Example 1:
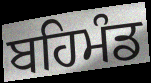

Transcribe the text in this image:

ਬਹਿਮੰਡ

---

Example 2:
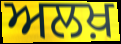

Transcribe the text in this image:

ਅਲਖ਼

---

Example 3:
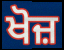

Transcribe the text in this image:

ਖੋਜ਼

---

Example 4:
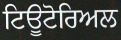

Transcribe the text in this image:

ਟਿਊਟੋਰਿਅਲ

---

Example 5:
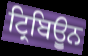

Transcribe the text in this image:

ਟ੍ਰਿਬਿਉੂਨ